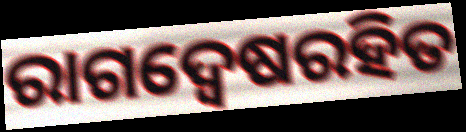
ରାଗଦ୍ୱେଷରହିତ